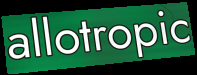
allotropic